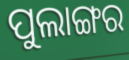
ପୁଲାଙ୍ଗର